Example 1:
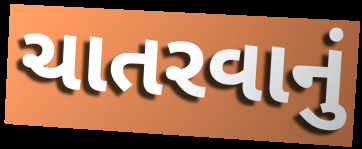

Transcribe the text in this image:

ચાતરવાનું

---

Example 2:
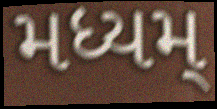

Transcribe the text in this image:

મધ્યમ્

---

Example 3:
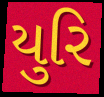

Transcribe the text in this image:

યુરિ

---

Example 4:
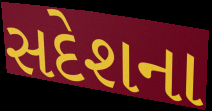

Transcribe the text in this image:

સદેશના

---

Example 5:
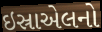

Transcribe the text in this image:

ઇસ્રાએલનો